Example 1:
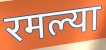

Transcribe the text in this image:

रमल्या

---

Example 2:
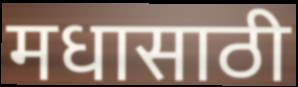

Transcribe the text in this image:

मधासाठी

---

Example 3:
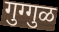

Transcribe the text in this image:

गुग्गुळ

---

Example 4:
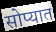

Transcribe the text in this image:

सोप्यात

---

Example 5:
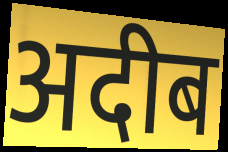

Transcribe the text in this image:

अदीब